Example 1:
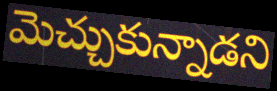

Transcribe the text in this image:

మెచ్చుకున్నాడని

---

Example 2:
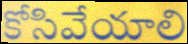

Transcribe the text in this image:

కోసివేయాలి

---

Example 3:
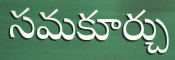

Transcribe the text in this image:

సమకూర్చు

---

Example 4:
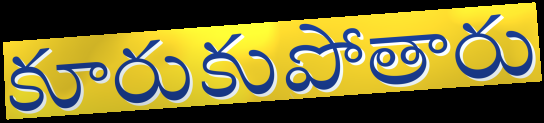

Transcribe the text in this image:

కూరుకుపోతారు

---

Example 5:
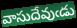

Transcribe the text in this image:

వాసుదేవుఁడు